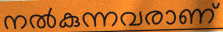
നൽകുന്നവരാണ്